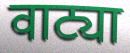
वाट्या